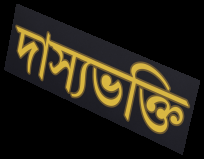
দাস্যভক্তি